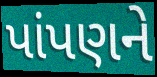
પાંપણને